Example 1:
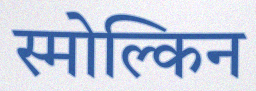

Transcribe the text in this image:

स्मोल्किन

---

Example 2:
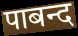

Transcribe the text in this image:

पाबन्द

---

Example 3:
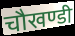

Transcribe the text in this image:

चौखण्डी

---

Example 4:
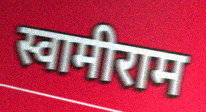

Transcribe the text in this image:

स्वामीराम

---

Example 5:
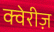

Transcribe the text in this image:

क्वेरीज़